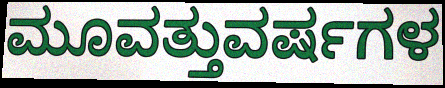
ಮೂವತ್ತುವರ್ಷಗಳ